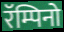
रॅम्पिनो